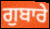
ਗੁਬਾਰੇ